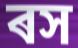
ৰস